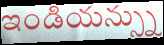
ఇండియన్స్ను